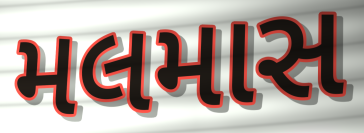
મલમાસ